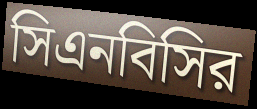
সিএনবিসির